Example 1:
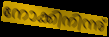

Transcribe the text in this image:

നോക്കിനിന്നു്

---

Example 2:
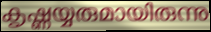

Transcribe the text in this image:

കൃഷ്ണയ്യരുമായിരുന്നു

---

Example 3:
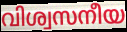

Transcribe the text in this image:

വിശ്വസനീയ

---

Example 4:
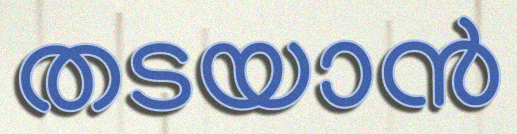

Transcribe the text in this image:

തടയാൻ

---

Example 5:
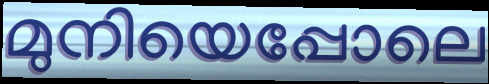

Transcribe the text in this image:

മുനിയെപ്പോലെ